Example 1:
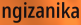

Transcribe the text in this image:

ngizanika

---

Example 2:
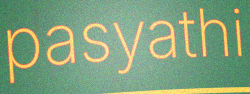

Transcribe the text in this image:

pasyathi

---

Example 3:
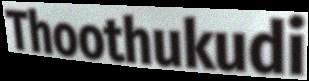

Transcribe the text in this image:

Thoothukudi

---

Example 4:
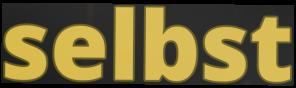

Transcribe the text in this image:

selbst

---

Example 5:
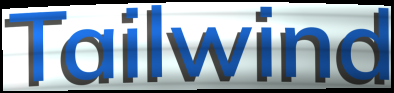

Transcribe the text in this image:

Tailwind